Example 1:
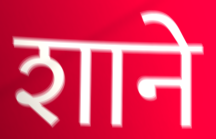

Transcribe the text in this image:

शाने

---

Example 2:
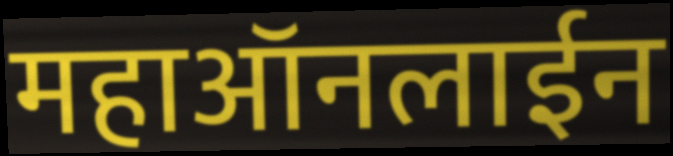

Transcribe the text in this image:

महाऑनलाईन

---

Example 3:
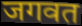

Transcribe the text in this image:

जगवत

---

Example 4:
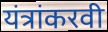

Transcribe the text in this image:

यंत्रांकरवी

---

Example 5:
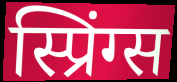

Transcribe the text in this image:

स्प्रिंग्स